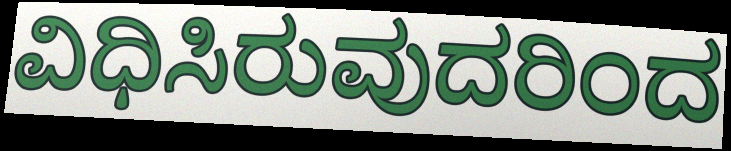
ವಿಧಿಸಿರುವುದರಿಂದ